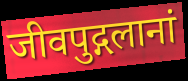
जीवपुद्गलानां